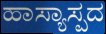
ಹಾಸ್ಯಾಸ್ಪದ